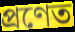
প্ৰণেত